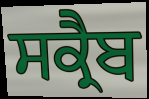
ਸਕ੍ਰੈਬ